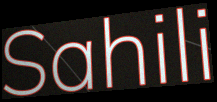
Sahili